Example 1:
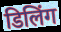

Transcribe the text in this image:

डिलिंग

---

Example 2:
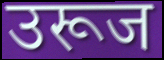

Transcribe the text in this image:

उरूज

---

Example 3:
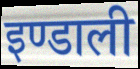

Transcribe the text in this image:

इण्डाली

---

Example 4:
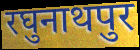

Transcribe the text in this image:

रघुनाथपुर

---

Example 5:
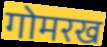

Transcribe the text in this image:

गोमरख